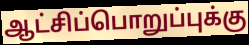
ஆட்சிப்பொறுப்புக்கு